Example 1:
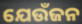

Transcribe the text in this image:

ଯେଉଁଜନ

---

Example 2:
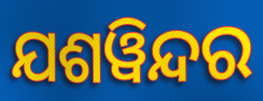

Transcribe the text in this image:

ଯଶୱିନ୍ଦର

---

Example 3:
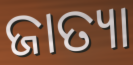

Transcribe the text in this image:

ଜାତ୍ୟା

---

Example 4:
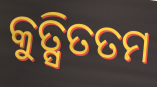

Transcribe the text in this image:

କୁତ୍ସିତତମ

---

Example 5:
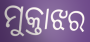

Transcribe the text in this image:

ମୁକ୍ତାଝର